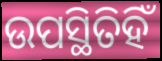
ଉପସ୍ଥିତିହିଁ